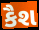
કૈશ